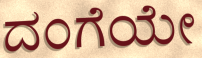
ದಂಗೆಯೇ